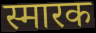
स्मारक